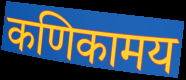
कणिकामय